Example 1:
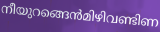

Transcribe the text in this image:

നീയുറങ്ങെൻമിഴിവണ്ടിണ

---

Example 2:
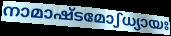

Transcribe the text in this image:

നാമാഷ്ടമോഽധ്യായഃ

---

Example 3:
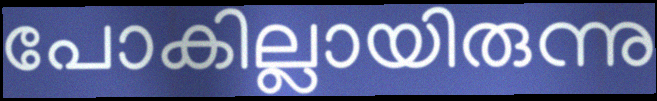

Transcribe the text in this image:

പോകില്ലായിരുന്നു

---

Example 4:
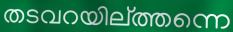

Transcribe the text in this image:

തടവറയില്ത്തന്നെ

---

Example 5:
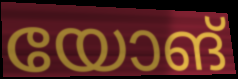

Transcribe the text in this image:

യോങ്